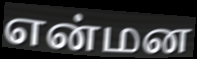
என்மன